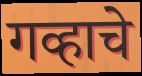
गव्हाचे